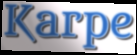
Karpe